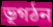
ভূগঠন